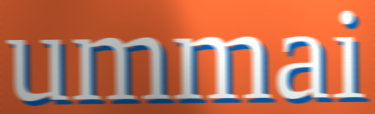
ummai